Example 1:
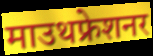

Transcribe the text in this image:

माउथफ्रेशनर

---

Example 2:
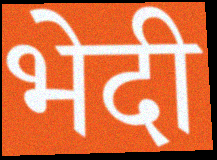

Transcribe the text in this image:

भेदी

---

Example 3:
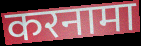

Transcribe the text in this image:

करनामा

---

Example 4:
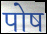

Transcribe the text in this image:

पोष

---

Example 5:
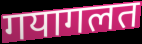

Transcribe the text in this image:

गयागलत